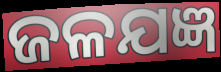
ଜଳଯଜ୍ଞ